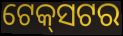
ଟେକ୍‌ସଟର